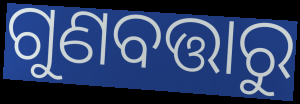
ଗୁଣବତ୍ତାରୁ